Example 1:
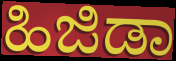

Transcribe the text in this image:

ಹಿಜಿಡಾ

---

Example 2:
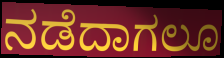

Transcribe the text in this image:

ನಡೆದಾಗಲೂ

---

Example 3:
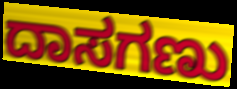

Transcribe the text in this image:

ದಾಸಗಣು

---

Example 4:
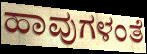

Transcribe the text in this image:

ಹಾವುಗಳಂತೆ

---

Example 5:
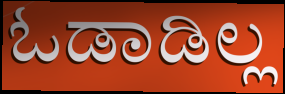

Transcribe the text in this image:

ಓಡಾಡಿಲ್ಲ